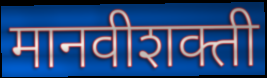
मानवीशक्ती